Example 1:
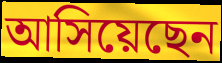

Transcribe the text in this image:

আসিয়েছেন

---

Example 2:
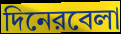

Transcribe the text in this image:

দিনেরবেলা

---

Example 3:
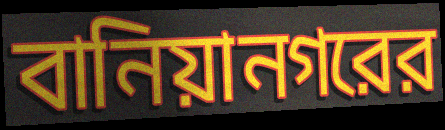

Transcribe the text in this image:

বানিয়ানগরের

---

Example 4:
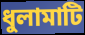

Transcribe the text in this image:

ধুলামাটি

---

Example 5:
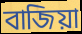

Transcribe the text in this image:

বাজিয়া